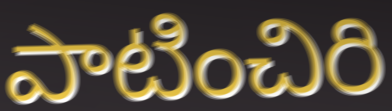
పాటించిరి